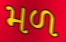
મળ